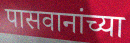
पासवानांच्या